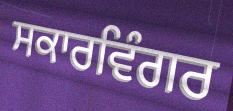
ਸਕਾਰਵਿੰਗਰ